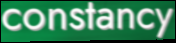
constancy